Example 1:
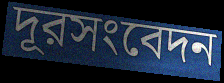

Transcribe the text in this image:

দূরসংবেদন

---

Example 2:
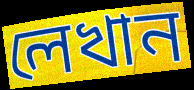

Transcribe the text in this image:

লেখান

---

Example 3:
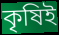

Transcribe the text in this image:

কৃষিই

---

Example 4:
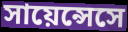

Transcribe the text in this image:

সায়েন্সেসে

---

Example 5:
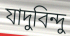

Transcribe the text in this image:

যাদুবিন্দু